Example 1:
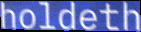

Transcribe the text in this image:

holdeth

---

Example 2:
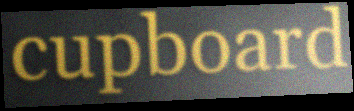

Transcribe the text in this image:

cupboard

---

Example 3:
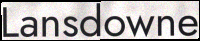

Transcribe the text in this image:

Lansdowne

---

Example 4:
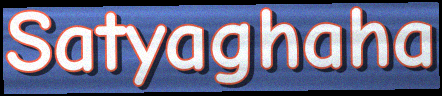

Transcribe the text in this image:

Satyaghaha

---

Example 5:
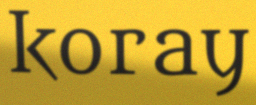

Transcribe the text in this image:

koray